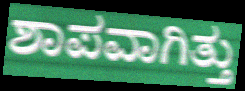
ಶಾಪವಾಗಿತ್ತು